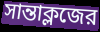
সান্তাক্লজের